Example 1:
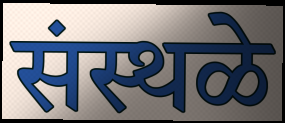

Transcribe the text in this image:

संस्थळे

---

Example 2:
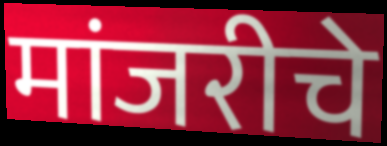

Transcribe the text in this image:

मांजरीचे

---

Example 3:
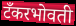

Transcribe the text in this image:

टँकरभोवती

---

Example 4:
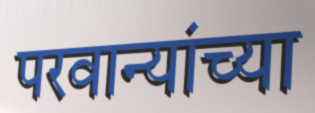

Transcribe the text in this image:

परवान्यांच्या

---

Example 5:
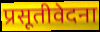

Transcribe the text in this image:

प्रसूतीवेदना